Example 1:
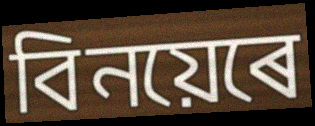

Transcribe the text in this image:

বিনয়েৰে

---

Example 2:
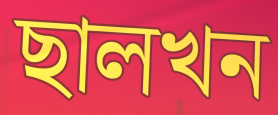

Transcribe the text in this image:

ছালখন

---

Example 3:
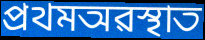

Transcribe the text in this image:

প্ৰথমঅৱস্থাত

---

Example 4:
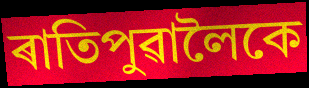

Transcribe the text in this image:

ৰাতিপুৱালৈকে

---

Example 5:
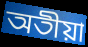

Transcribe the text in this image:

অতীয়া